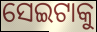
ସେଇଟାକୁ